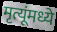
मृत्यूंमध्ये